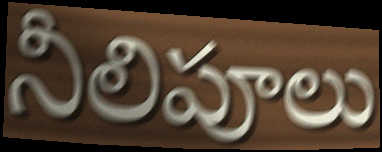
నీలిపూలు